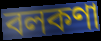
বলকণা